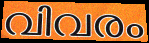
വിവരം